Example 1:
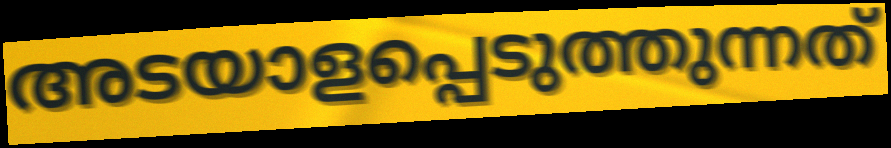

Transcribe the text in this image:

അടയാളപ്പെടുത്തുന്നത്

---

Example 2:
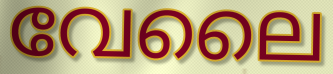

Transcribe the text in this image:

വേലൈ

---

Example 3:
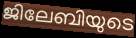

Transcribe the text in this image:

ജിലേബിയുടെ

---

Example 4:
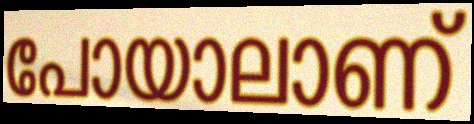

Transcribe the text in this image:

പോയാലാണ്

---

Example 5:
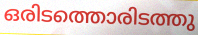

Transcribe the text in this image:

ഒരിടത്തൊരിടത്തു